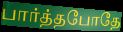
பார்த்தபோதே